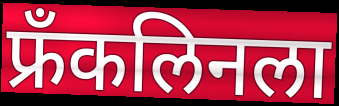
फ्रॅंकलिनला